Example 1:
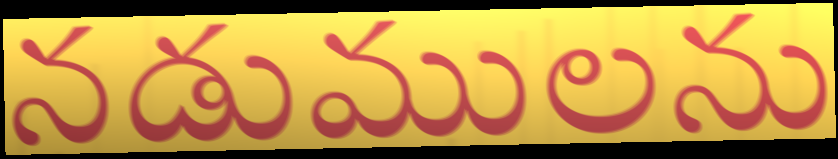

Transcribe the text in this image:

నడుములను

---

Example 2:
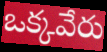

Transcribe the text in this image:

ఒక్కవేరు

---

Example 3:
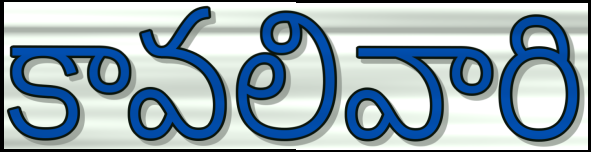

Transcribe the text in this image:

కావలివారి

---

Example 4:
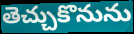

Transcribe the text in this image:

తెచ్చుకొనును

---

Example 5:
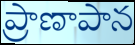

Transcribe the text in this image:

ప్రాణాపాన